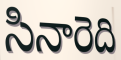
సినారెది